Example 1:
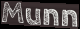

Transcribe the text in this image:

Munn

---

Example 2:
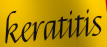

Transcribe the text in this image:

keratitis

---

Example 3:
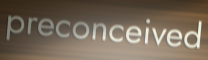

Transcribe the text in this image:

preconceived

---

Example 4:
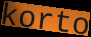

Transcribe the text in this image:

korto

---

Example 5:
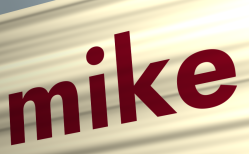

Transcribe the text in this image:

mike